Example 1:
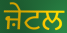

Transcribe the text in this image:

ਜ਼ੇਟਲ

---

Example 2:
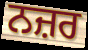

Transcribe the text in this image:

ਨਜ਼ਰ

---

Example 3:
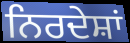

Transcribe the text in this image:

ਨਿਰਦੇਸ਼ਾਂ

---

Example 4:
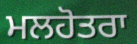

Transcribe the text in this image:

ਮਲਹੋਤਰਾ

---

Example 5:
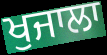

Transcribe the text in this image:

ਖੁਜਾਲਾ